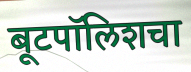
बूटपॉलिशचा